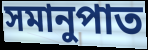
সমানুপাত